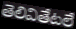
తెలివితేటలే